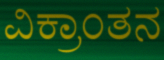
ವಿಕ್ರಾಂತನ